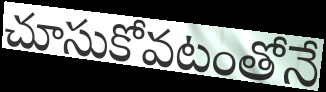
చూసుకోవటంతోనే